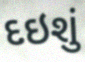
દઇશું